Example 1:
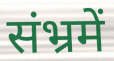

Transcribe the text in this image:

संभ्रमें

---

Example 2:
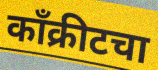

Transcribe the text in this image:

काँक्रीटचा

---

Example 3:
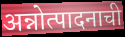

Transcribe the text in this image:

अन्नोत्पादनाची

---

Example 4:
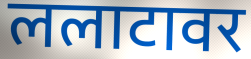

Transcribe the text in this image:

ललाटावर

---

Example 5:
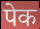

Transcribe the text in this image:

पेक